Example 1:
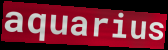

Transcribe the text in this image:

aquarius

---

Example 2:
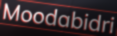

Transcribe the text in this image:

Moodabidri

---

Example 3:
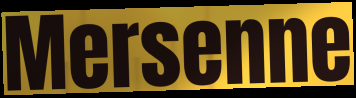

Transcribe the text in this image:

Mersenne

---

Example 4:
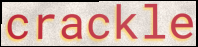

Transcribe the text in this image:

crackle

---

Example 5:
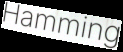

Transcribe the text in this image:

Hamming